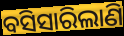
ବସିସାରିଲାଣି